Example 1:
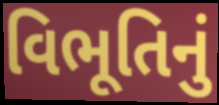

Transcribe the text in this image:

વિભૂતિનું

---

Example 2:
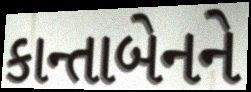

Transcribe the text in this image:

કાન્તાબેનને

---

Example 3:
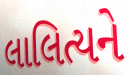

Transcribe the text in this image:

લાલિત્યને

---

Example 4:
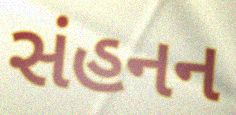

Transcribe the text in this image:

સંહનન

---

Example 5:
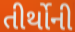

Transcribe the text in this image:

તીર્થોની